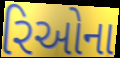
રિઓના